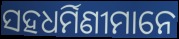
ସହଧର୍ମିଣୀମାନେ